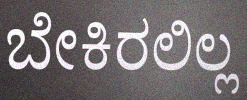
ಬೇಕಿರಲಿಲ್ಲ